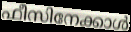
ഫീസിനേക്കാൾ